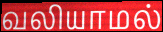
வலியாமல்